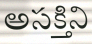
అసక్తిని